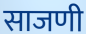
साजणी